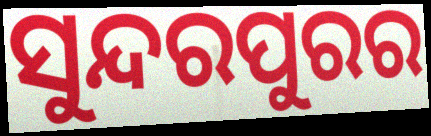
ସୁନ୍ଦରପୁରର